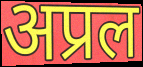
अप्रल